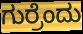
ಗುರ್ರೆಂದು